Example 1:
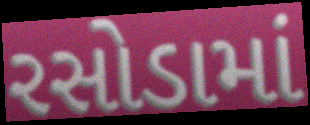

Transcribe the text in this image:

રસોડામાં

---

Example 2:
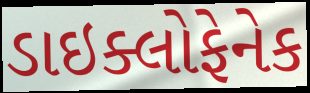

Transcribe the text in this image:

ડાઇક્લોફેનેક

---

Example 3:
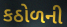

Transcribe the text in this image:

કઠોળની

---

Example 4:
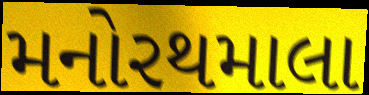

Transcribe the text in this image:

મનોરથમાલા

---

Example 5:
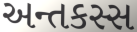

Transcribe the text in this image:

અન્તકસ્સ